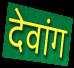
देवांग